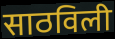
साठविली